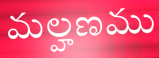
మల్హణము